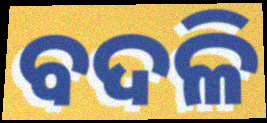
ବଦଳି